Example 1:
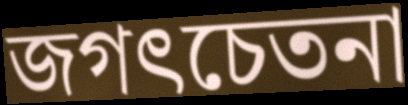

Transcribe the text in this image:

জগৎচেতনা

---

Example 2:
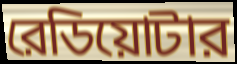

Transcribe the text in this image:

রেডিয়োটার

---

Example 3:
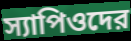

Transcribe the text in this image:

স্যাপিওদের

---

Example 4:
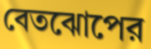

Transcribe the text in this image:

বেতঝোপের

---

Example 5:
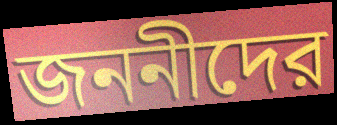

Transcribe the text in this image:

জননীদের